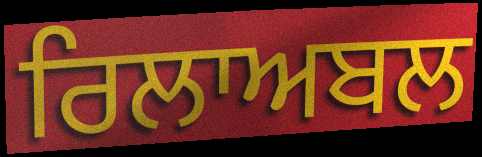
ਰਿਲਾਅਬਲ